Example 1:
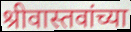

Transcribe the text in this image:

श्रीवास्तवांच्या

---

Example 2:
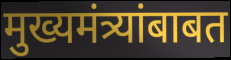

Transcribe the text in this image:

मुख्यमंत्र्यांबाबत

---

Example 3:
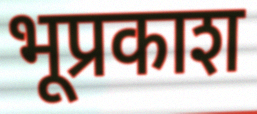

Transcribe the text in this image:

भूप्रकाश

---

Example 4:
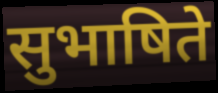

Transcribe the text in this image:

सुभाषिते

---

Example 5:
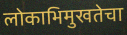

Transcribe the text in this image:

लोकाभिमुखतेचा